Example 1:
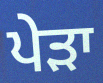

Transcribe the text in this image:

ਪੇੜਾ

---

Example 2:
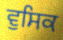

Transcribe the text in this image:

ਵੁਸਿਕ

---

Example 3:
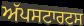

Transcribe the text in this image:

ਅੱਪਸਟਾਰਟਸ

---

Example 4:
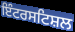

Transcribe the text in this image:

ਇੰਟਰਸਟਿਸ਼ਲ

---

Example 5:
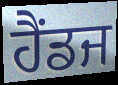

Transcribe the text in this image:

ਹੈਂਡਜ